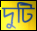
দুটি